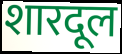
शारदूल